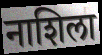
नाशिला